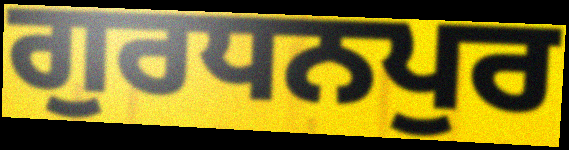
ਗੁਰਧਨਪੁਰ